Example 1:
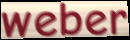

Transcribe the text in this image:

weber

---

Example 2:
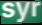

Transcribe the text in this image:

syr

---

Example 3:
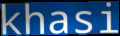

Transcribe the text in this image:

khasi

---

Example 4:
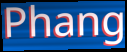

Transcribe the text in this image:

Phang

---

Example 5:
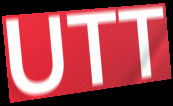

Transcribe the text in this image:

UTT